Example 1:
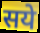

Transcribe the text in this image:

सये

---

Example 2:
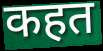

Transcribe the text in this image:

कहत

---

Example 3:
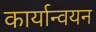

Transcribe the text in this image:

कार्यान्वयन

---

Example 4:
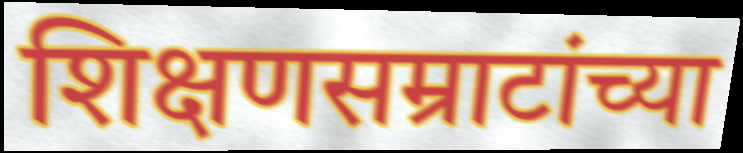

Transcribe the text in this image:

शिक्षणसम्राटांच्या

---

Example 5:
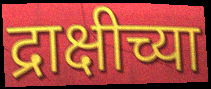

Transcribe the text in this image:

द्राक्षीच्या